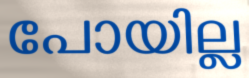
പോയില്ല